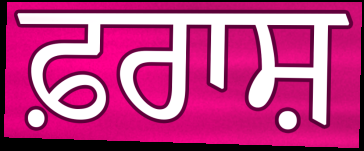
ਫ਼ਰਾਸ਼